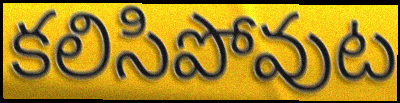
కలిసిపోవుట